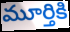
మూర్తికి